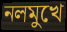
নলমুখে